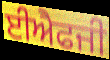
ਈਐਫਜੀ